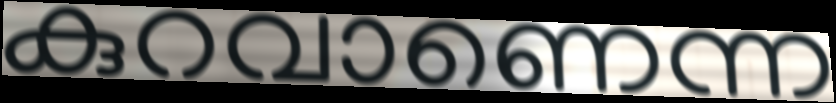
കുറവാണെന്ന